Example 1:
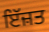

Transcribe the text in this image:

ਇੱਜ਼ਤ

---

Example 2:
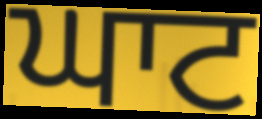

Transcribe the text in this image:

ਘਾਟ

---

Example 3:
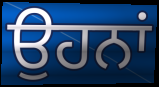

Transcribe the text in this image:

ਉਹਨਾਂ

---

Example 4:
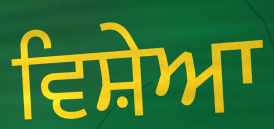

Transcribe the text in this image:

ਵਿਸ਼ੇਆ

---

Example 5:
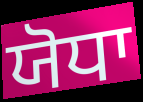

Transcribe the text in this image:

ਯੋਧਾ